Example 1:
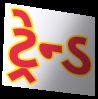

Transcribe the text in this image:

ટ્રેન્ડ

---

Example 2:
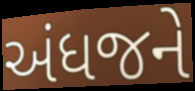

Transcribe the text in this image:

અંધજને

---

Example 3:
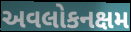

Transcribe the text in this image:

અવલોકનક્ષમ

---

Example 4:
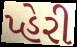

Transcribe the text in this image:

પ્હેરી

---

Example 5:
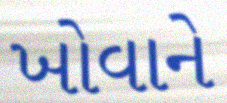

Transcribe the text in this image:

ખોવાને